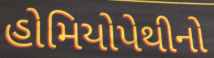
હોમિયોપેથીનો